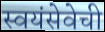
स्वयंसेवेची